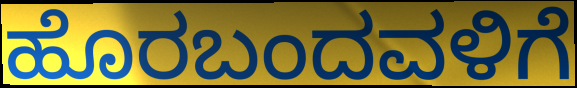
ಹೊರಬಂದವಳಿಗೆ